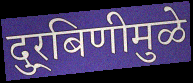
दुर्बिणीमुळे